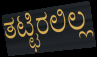
ತಟ್ಟಿರಲಿಲ್ಲ